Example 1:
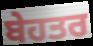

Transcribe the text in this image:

ਬੇਹਤਰ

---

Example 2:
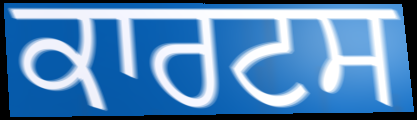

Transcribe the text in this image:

ਕਾਰਟਸ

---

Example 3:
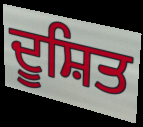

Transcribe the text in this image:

ਦੂਸ਼ਿਤ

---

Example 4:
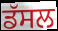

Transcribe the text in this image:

ਡੱਸਲ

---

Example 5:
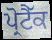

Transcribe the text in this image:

ਪ੍ਰੋਟੈੱਕ